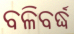
ବଳିବର୍ଦ୍ଧ